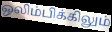
ஒலிம்பிக்கிலும்